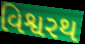
વિશ્વરથ